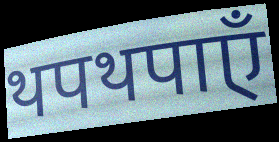
थपथपाएँ